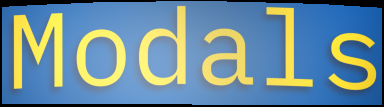
Modals